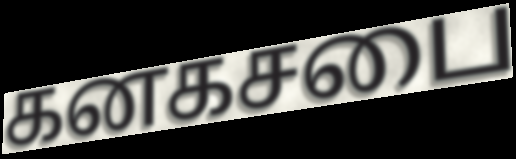
கனகசபை